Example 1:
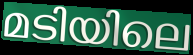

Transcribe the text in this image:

മടിയിലെ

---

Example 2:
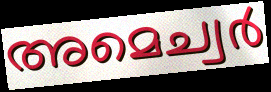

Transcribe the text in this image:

അമെച്വർ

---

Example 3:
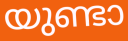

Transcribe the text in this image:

യുണ്ടാ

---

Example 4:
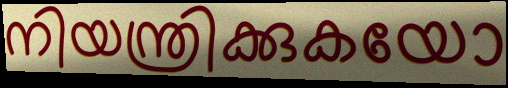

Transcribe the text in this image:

നിയന്ത്രിക്കുകയോ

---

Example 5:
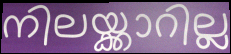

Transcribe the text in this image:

നിലയ്ക്കാറില്ല